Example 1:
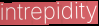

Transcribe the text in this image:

intrepidity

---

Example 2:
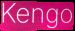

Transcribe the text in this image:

Kengo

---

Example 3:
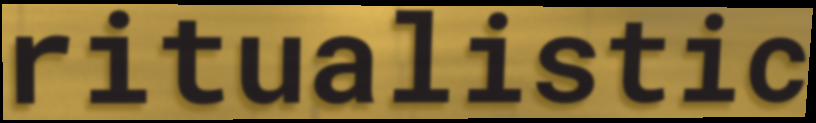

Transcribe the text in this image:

ritualistic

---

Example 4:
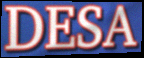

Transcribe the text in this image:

DESA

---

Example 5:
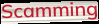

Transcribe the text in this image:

Scamming